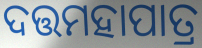
ଦତ୍ତମହାପାତ୍ର